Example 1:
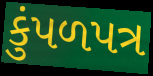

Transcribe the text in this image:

કુંપળપત્ર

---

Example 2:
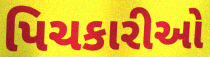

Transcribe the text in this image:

પિચકારીઓ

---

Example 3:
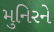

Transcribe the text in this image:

મુનિરને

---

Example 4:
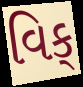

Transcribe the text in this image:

વિક્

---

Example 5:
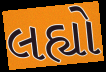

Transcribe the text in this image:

લહ્યો